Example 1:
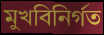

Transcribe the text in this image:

মুখবিনির্গত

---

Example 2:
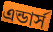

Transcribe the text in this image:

এন্ডার্স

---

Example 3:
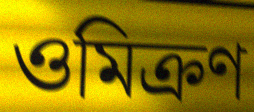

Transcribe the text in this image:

ওমিক্রণ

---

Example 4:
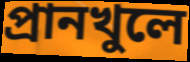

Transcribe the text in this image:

প্রানখুলে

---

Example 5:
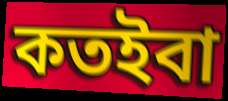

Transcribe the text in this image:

কতইবা